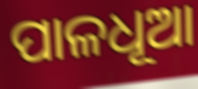
ପାଳଧୂଆ